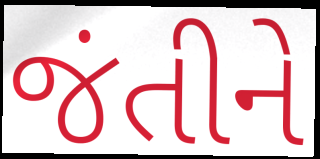
જંતીને